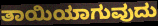
ತಾಯಿಯಾಗುವುದು